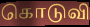
கொடுவி